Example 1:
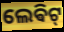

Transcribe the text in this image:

ଲେଵିଟ୍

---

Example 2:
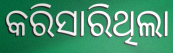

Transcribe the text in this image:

କରିସାରିଥିଲା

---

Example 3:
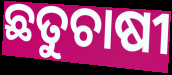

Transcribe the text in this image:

ଛତୁଚାଷୀ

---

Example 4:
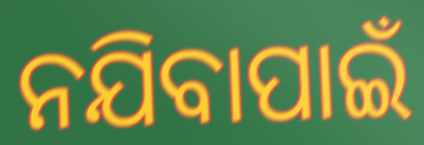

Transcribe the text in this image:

ନଯିବାପାଇଁ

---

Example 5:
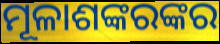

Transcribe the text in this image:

ମୂଳାଶଙ୍କରଙ୍କର